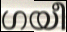
ഗയീ